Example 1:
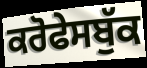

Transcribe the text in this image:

ਕਰੋਫੇਸਬੁੱਕ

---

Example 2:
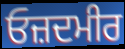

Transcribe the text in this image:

ਓਜ਼ਦਮੀਰ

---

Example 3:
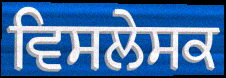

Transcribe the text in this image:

ਵਿਸਲੇਸਕ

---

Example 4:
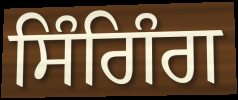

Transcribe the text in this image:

ਸਿੰਗਿੰਗ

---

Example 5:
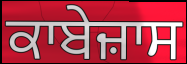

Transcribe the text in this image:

ਕਾਬੇਜ਼ਾਸ